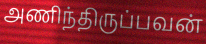
அணிந்திருப்பவன்